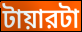
টায়ারটা